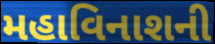
મહાવિનાશની